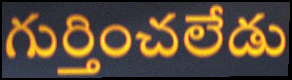
గుర్తించలేడు